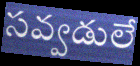
సవ్వడులే